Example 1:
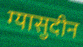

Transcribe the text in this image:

ग्यासुदीन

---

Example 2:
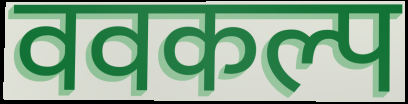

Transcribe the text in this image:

ववकल्प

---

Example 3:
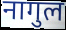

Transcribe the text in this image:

नागुल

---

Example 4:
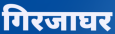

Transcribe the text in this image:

गिरजाघर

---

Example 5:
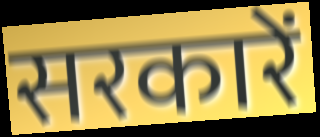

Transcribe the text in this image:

सरकारें